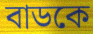
বাডকে